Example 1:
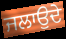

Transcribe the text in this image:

ਜਲਾਉਦੇ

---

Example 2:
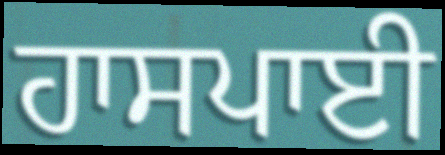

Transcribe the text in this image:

ਹਾਸਪਾਈ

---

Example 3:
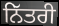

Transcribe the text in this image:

ਨਿੱਤਰੀ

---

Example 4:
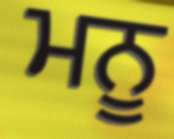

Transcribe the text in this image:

ਮਨੂ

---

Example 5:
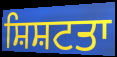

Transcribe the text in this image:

ਸ਼ਿਸ਼ਟਤਾ